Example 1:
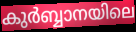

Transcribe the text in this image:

കുർബ്ബാനയിലെ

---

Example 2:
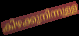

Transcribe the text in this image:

കിഴക്കുനിന്നുള്ള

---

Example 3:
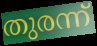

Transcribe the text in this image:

തുരന്ന്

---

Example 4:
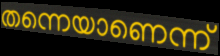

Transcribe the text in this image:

തന്നെയാണെന്ന്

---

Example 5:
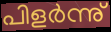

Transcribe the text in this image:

പിളർന്നു്